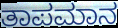
ತಾಪಮಾನ